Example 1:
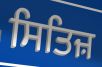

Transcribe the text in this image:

ਸਿਤਿਜ਼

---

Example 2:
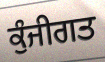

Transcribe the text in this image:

ਕੁੰਜੀਗਤ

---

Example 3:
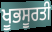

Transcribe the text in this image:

ਖੂਭਸੂਰਤੀ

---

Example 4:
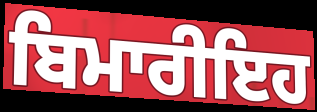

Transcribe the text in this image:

ਬਿਮਾਰੀਇਹ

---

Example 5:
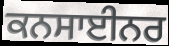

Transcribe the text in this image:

ਕਨਸਾਈਨਰ